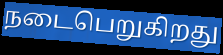
நடைபெறுகிறது